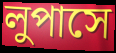
লুপাসে